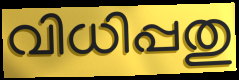
വിധിപ്പതു